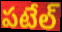
పటేల్